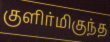
குளிர்மிகுந்த